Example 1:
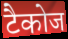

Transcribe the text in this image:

टैकोज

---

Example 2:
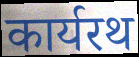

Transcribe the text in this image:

कार्यरथ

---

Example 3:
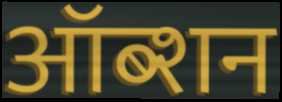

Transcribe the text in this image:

ऑब्शन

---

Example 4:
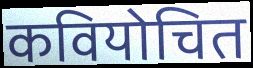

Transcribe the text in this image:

कवियोचित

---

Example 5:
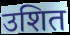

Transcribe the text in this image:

उशित